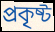
প্ৰকৃষ্ট